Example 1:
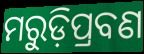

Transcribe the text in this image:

ମରୁଡ଼ିପ୍ରବଣ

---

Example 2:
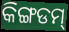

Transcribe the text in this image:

କିଙ୍ଗଡମ୍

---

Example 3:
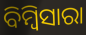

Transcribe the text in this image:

ବିମ୍ବିସାରା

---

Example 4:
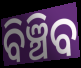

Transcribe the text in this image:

ବିଞ୍ଚିବ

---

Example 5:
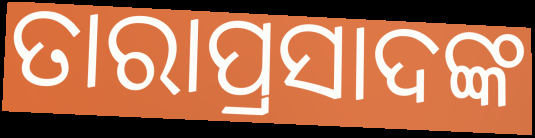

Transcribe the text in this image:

ତାରାପ୍ରସାଦଙ୍କ